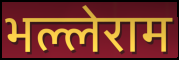
भल्लेराम